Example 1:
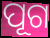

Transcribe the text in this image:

ପୂଗ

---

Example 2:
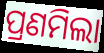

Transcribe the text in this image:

ପ୍ରଣମିଲା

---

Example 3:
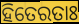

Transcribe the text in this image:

ହିତେରତାଃ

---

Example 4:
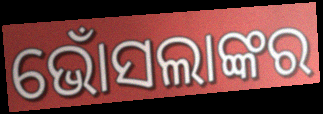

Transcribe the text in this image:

ଭୋଁସଲାଙ୍କର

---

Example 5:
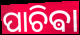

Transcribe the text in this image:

ପାଚିଵା